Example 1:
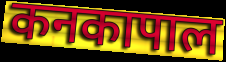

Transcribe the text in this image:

कनकापाल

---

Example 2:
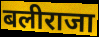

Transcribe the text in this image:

बलीराजा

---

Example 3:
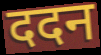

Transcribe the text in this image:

ददन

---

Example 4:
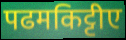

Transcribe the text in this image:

पढमकिट्टीए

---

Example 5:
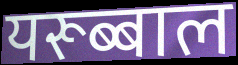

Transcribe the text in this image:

यरूब्बाल